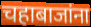
चहाबाजांना